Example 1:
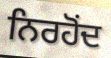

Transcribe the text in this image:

ਨਿਰਹੋਂਦ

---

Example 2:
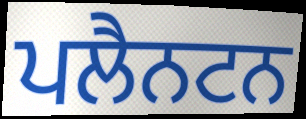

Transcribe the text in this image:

ਪਲੈਨਟਨ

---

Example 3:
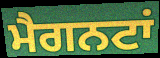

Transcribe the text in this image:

ਮੈਗਨਟਾਂ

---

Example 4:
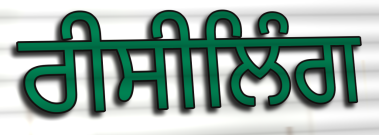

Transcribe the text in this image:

ਰੀਸੀਲਿੰਗ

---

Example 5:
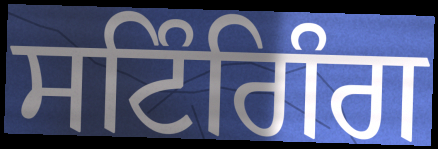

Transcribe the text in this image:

ਸਟਿੰਗਿੰਗ